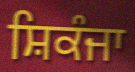
ਸ਼ਿਕੰਜਾ